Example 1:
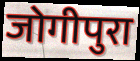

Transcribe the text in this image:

जोगीपुरा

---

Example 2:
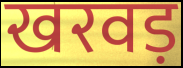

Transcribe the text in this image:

खरवड़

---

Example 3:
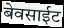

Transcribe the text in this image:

बेवसाईट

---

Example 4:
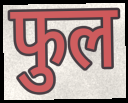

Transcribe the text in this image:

फुल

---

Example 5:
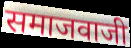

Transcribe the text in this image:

समाजवाजी